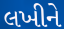
લખીને